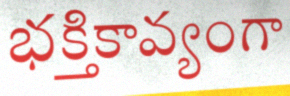
భక్తికావ్యంగా